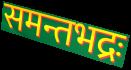
समन्तभद्रः